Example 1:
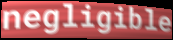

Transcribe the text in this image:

negligible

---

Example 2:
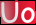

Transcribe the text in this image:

Uo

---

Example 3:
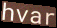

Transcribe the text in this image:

hvar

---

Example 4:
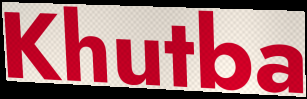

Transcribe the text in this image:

Khutba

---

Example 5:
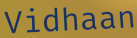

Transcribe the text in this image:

Vidhaan